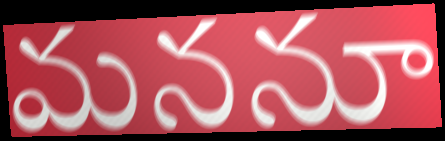
మననూ